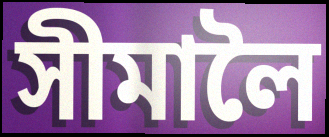
সীমালৈ